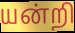
யன்றி